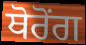
ਥੋਰੋਂਗ